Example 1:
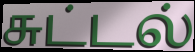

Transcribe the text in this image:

சுட்டல்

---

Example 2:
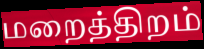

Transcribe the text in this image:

மறைத்திறம்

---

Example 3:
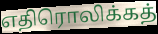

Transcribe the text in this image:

எதிரொலிக்கத்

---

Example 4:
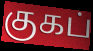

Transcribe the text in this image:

குகப்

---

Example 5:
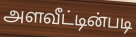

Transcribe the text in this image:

அளவீட்டின்படி